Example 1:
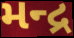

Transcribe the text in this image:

મન્દ્ર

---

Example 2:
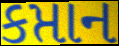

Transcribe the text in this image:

કપ્તાન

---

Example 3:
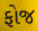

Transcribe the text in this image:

ફોજ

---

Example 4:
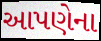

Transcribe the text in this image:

આપણેના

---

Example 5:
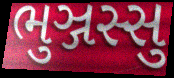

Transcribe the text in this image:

ભુઞ્જસ્સુ